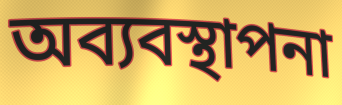
অব্যবস্থাপনা